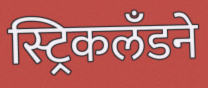
स्ट्रिकलँडने